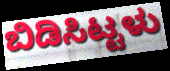
ಬಿಡಿಸಿಟ್ಟಳು